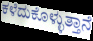
ಕಳೆದುಕೊಳ್ಳುತ್ತಾನೆ